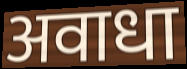
अवाधा